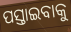
ପସ୍ତାଇବାକୁ